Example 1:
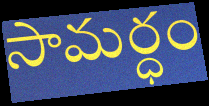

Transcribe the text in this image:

సామర్ధం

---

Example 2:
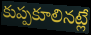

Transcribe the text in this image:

కుప్పకూలినట్లే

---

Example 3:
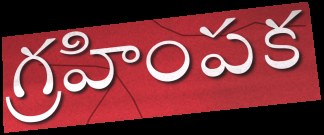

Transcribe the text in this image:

గ్రహింపక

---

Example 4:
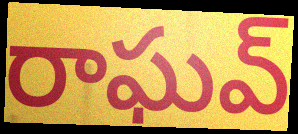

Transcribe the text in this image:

రాఘవ్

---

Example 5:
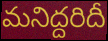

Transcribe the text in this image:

మనిద్దరిదీ